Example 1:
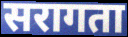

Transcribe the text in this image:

सरागता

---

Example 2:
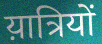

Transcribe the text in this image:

य़ात्रियों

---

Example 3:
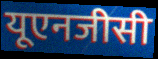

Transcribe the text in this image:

यूएनजीसी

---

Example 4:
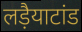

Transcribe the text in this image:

लड़ैयाटांड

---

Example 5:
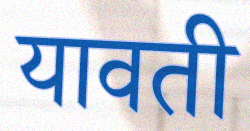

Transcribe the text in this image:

यावती